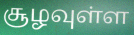
சூழவுள்ள